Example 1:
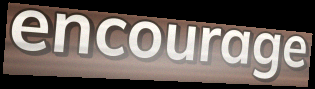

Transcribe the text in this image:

encourage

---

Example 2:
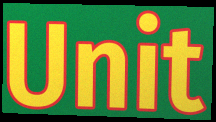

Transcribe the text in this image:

Unit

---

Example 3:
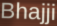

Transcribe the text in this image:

Bhajji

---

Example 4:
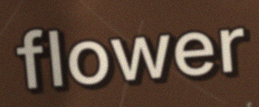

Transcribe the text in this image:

flower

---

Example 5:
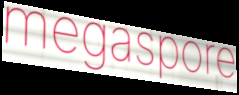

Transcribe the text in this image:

megaspore